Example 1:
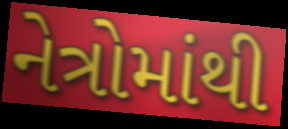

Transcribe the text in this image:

નેત્રોમાંથી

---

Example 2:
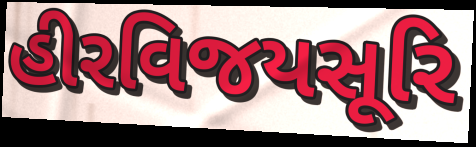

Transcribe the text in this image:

હીરવિજયસૂરિ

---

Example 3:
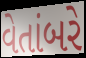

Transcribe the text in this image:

વેતાંબરે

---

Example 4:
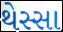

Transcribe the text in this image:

થેસ્સા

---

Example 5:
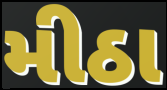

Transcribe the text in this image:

મીઠા